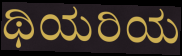
ಥಿಯರಿಯ